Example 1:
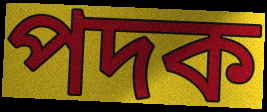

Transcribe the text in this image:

পদক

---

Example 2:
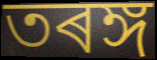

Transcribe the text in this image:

তৰঙ্গ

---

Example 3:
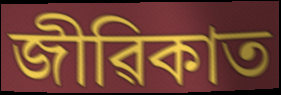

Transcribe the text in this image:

জীৱিকাত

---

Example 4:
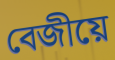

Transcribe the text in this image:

বেজীয়ে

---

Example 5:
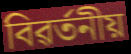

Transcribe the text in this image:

বিৱৰ্তনীয়